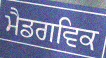
ਮੈਡਗਵਿਕ